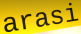
arasi